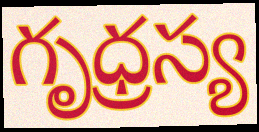
గృధ్రస్య